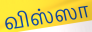
விஸ்ஸா